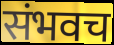
संभवच